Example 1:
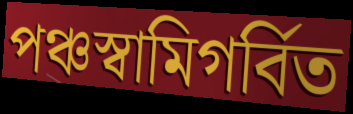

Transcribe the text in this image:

পঞ্চস্বামিগর্বিত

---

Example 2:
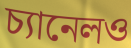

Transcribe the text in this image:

চ্যানেলও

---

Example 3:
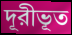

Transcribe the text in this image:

দূরীভূত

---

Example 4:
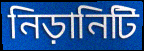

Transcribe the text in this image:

নিড়ানিটি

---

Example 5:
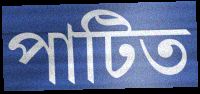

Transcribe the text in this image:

পাটিত